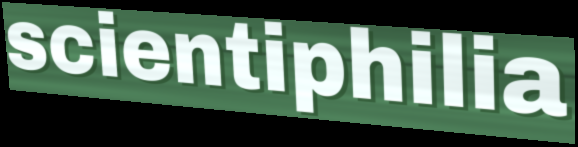
scientiphilia